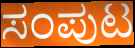
ಸಂಪುಟ